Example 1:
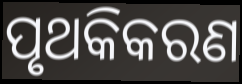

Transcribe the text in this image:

ପୃଥକିକରଣ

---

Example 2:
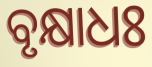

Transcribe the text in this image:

ବୃକ୍ଷାଧଃ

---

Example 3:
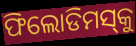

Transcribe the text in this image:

ଫିଲୋଡିମସ୍‌କୁ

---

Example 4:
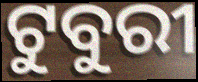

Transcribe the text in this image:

ଟୁବୁରୀ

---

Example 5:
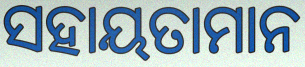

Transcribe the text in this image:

ସହାୟତାମାନ